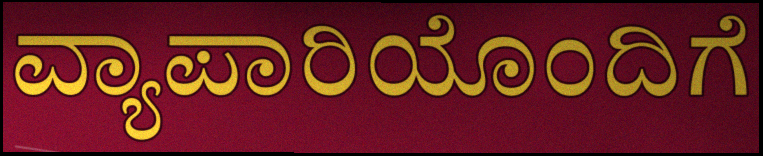
ವ್ಯಾಪಾರಿಯೊಂದಿಗೆ